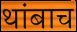
थांबाच